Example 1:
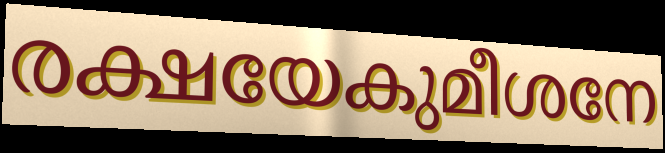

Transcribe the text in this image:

രക്ഷയേകുമീശനേ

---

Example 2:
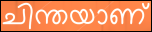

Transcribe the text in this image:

ചിന്തയാണ്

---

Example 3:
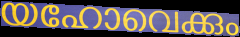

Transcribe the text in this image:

യഹോവെക്കും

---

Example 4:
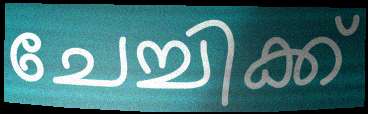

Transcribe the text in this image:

ചേച്ചിക്ക്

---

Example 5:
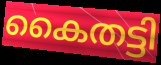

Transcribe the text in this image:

കൈതട്ടി